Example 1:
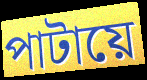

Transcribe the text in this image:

পাটায়ে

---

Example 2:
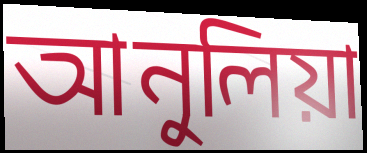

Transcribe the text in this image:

আনুলিয়া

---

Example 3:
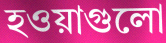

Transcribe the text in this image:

হওয়াগুলো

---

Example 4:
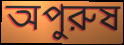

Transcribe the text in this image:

অপুরুষ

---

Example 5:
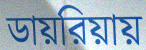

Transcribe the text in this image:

ডায়রিয়ায়